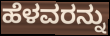
ಹೆಳವರನ್ನು